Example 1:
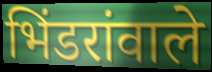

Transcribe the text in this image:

भिंडरांवाले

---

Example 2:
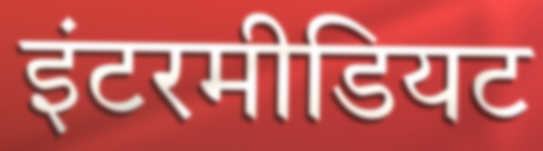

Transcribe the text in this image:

इंटरमीडियट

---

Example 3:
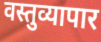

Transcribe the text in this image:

वस्तुव्यापार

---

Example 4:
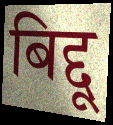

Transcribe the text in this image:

बिद्दू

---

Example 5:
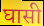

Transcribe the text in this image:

घासी